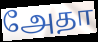
அேதா